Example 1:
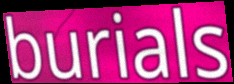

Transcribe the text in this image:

burials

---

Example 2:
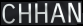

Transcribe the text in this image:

CHHAN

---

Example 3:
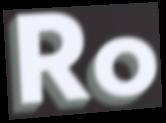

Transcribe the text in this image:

Ro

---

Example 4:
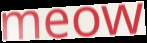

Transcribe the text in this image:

meow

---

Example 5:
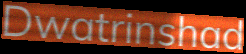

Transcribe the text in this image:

Dwatrinshad